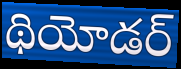
థియోడర్